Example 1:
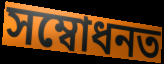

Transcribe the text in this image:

সম্বোধনত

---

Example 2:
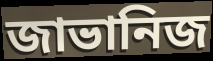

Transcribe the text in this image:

জাভানিজ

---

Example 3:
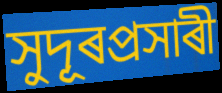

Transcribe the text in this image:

সুদূৰপ্ৰসাৰী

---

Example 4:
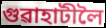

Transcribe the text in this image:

গুৱাহাটীলৈ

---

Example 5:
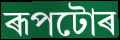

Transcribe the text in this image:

ৰূপটোৰ